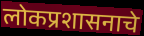
लोकप्रशासनाचे